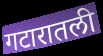
गटारातली